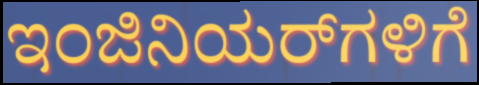
ಇಂಜಿನಿಯರ್‌ಗಳಿಗೆ